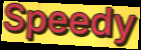
Speedy